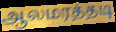
ஆலமரத்தடி